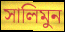
সালিমুন